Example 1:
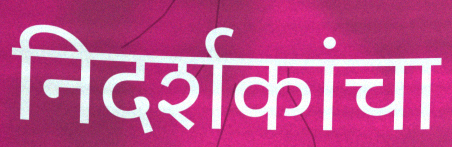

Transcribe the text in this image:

निदर्शकांचा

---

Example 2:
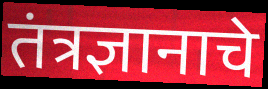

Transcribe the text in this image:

तंत्रज्ञानाचे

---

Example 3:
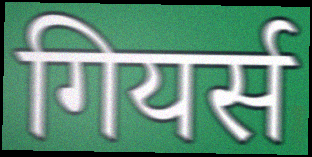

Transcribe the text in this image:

गियर्स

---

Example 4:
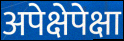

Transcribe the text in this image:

अपेक्षेपेक्षा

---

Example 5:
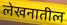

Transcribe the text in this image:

लेखनातील